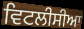
ਵਿਟਲੀਸੀਆ